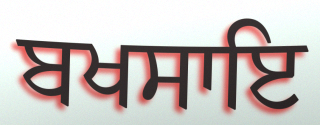
ਬਖਸਾਇ